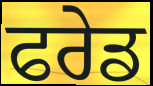
ਫਰੇਡ